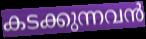
കടക്കുന്നവൻ